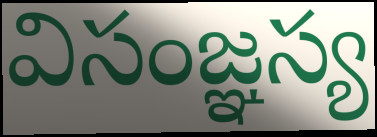
విసంజ్ఞస్య